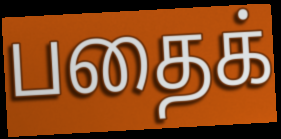
பதைக்